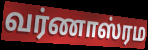
வர்ணாஸ்ரம